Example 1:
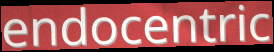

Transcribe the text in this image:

endocentric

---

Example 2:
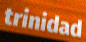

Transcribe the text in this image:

trinidad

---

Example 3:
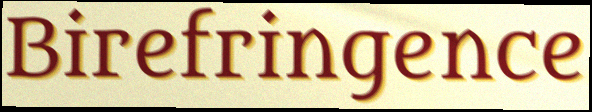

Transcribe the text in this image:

Birefringence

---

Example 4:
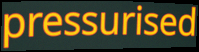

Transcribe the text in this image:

pressurised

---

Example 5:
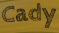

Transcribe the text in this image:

Cady